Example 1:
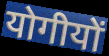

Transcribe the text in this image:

योगीयों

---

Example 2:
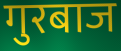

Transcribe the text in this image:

गुरबाज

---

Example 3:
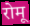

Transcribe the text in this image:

रोमू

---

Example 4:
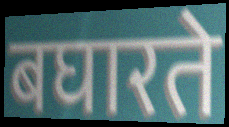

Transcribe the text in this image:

बघारते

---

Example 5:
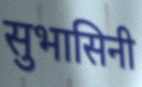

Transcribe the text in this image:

सुभासिनी